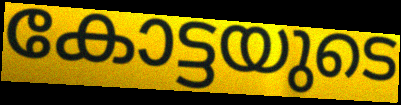
കോട്ടയുടെ